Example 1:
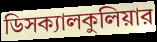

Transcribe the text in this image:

ডিসক্যালকুলিয়ার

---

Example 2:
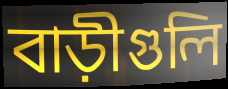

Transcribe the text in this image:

বাড়ীগুলি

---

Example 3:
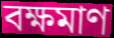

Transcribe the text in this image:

বক্ষমাণ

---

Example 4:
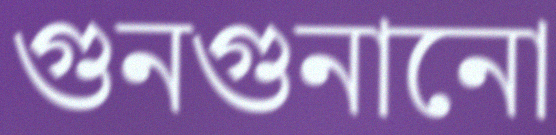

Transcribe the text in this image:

গুনগুনানো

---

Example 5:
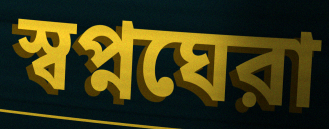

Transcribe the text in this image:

স্বপ্নঘেরা